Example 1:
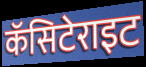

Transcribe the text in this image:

कॅसिटेराइट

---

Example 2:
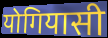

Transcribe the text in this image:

योगियासी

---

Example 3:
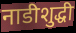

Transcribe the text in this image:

नाडीशुद्धी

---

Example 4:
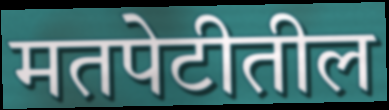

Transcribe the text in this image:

मतपेटीतील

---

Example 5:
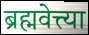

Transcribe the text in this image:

ब्रह्मवेत्त्या